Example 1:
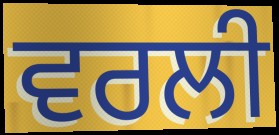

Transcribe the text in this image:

ਵਰਲੀ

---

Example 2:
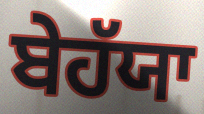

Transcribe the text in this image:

ਬੇਹੱਯਾ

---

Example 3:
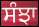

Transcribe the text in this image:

ਸੰਝਾ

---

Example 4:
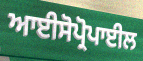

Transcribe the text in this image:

ਆਈਸੋਪ੍ਰੋਪਾਈਲ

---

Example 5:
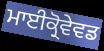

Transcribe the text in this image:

ਮਾਈਕ੍ਰੋਵੇਵਡ